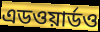
এডওয়ার্ডও